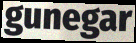
gunegar